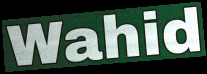
Wahid